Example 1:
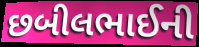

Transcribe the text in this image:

છબીલભાઈની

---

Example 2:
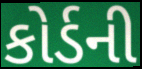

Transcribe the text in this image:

કોર્ડની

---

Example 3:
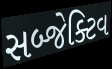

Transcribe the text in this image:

સબ્જેક્ટિવ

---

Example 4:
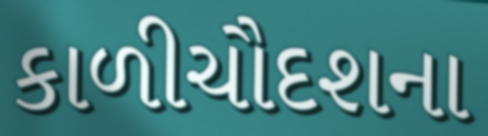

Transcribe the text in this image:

કાળીચૌદશના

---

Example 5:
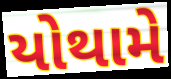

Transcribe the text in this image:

યોથામે